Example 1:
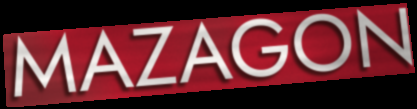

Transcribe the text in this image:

MAZAGON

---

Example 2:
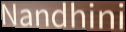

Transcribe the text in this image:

Nandhini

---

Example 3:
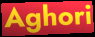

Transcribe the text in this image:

Aghori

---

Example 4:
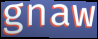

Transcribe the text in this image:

gnaw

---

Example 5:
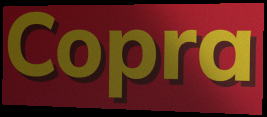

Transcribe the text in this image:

Copra